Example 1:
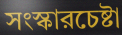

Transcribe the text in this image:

সংস্কারচেষ্টা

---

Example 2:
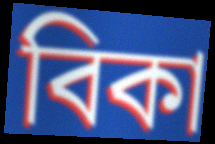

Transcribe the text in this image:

বিকা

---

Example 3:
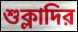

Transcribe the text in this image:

শুক্লাদির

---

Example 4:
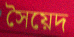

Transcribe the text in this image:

সৈয়েদ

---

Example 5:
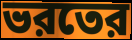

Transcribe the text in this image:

ভরতের